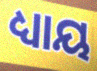
ଧ୍ୟାୟ